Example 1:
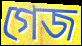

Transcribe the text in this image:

গেজ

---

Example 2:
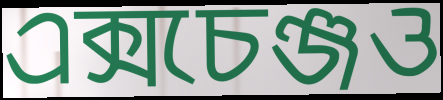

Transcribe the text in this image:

এক্সচেঞ্জও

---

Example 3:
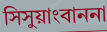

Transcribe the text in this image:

সিসুয়াংবাননা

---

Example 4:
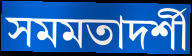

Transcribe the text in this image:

সমমতাদর্শী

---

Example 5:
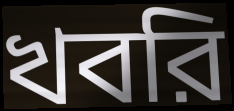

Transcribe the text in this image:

খবরি